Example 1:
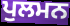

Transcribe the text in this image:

ਪੁਲਮਨ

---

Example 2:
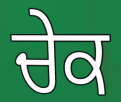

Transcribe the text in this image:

ਚੇਕ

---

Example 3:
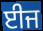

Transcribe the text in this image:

ਈਜ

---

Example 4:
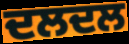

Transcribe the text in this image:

ਦਲਦਲ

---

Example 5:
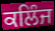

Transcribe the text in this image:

ਕਲਿੰਜ